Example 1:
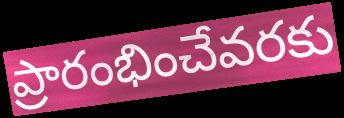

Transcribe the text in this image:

ప్రారంభించేవరకు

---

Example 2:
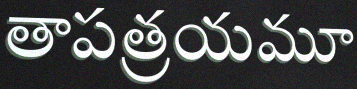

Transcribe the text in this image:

తాపత్రయమూ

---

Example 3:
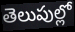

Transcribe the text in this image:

తెలుపుల్లో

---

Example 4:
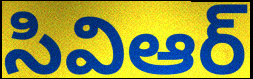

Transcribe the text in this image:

సివిఆర్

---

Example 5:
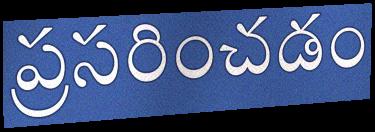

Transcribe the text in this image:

ప్రసరించడం